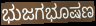
ಭುಜಗಭೂಷಣ